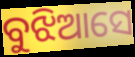
ବୁଝିଆସେ